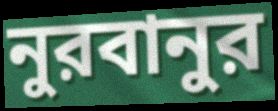
নুরবানুর